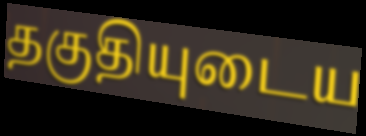
தகுதியுடைய